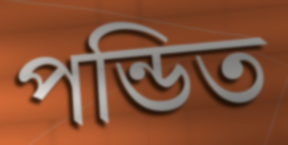
পন্ডিত